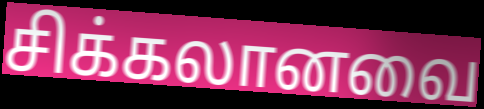
சிக்கலானவை